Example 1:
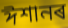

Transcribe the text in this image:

ঈশানৰ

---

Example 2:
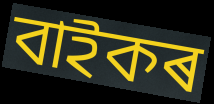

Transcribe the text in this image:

বাইকৰ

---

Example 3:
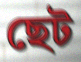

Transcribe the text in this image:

ছেট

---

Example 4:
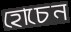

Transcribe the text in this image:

হোচেন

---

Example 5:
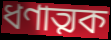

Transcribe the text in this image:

ধণাত্মক